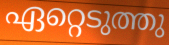
ഏറ്റെടുത്തു